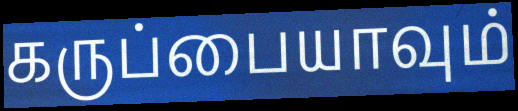
கருப்பையாவும்